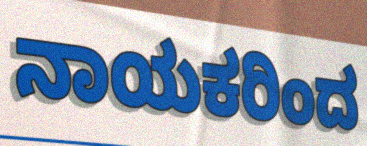
ನಾಯಕರಿಂದ